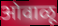
ओवाळू